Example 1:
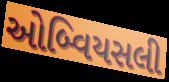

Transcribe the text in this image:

ઓબ્વિયસલી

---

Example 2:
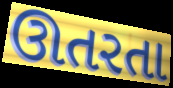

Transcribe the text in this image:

ઊતરતા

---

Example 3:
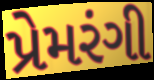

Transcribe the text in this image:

પ્રેમરંગી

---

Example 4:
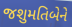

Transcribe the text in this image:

જશુમતિબેને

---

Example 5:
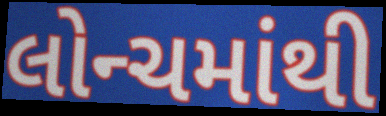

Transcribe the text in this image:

લોન્ચમાંથી